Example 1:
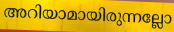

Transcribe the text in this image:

അറിയാമായിരുന്നല്ലോ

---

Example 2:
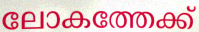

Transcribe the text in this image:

ലോകത്തേക്ക്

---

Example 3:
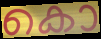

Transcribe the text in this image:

കൊ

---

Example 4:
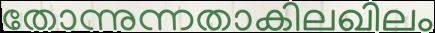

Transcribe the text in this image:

തോന്നുന്നതാകിലഖിലം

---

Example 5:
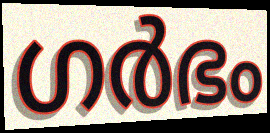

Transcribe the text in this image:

ഗർഭം